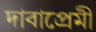
দাবাপ্রেমী